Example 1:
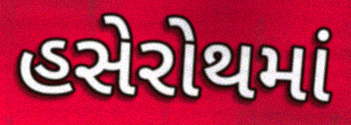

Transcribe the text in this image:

હસેરોથમાં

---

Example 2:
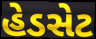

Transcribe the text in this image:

હેડસેટ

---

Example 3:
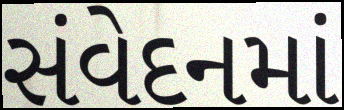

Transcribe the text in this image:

સંવેદનમાં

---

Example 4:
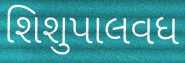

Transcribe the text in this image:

શિશુપાલવધ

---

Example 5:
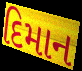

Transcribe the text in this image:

દિમાન